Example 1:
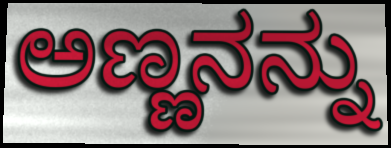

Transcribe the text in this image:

ಅಣ್ಣನನ್ನು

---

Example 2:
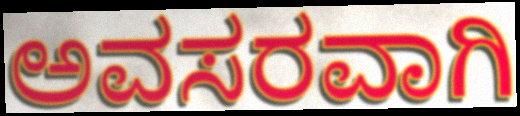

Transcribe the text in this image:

ಅವಸರವಾಗಿ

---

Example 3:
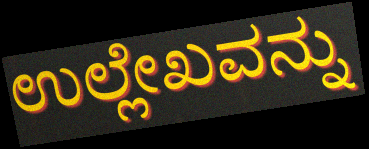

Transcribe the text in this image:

ಉಲ್ಲೇಖವನ್ನು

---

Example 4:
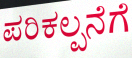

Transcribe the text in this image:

ಪರಿಕಲ್ಪನೆಗೆ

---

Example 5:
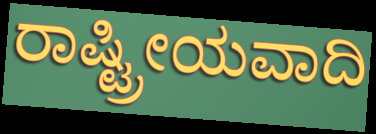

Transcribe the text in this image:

ರಾಷ್ಟ್ರೀಯವಾದಿ